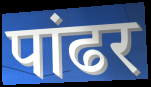
पांढर